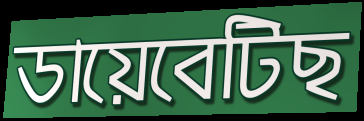
ডায়েবেটিছ